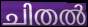
ചിതൽ